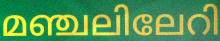
മഞ്ചലിലേറി